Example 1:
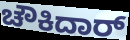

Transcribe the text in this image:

ಚೌಕಿದಾರ್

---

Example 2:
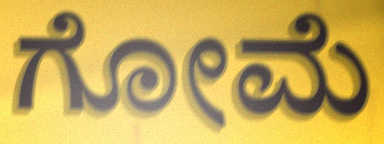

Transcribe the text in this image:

ಗೋಮೆ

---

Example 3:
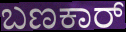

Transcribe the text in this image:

ಬಣಕಾರ್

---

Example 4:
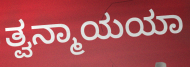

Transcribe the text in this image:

ತ್ವನ್ಮಾಯಯಾ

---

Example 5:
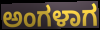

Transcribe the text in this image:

ಅಂಗಳಾಗ